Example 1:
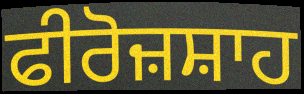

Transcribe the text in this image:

ਫੀਰੋਜ਼ਸ਼ਾਹ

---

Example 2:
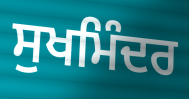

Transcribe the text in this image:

ਸੁਖਮਿੰਦਰ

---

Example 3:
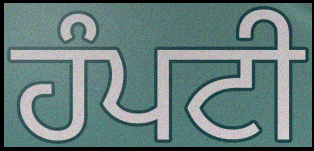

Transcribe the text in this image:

ਹੰਪਟੀ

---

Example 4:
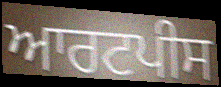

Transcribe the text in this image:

ਆਰਟਪੀਸ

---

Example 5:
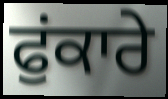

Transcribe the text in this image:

ਫੁਂਕਾਰੇ